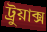
ট্রুয়াক্স